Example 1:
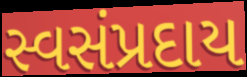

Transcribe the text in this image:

સ્વસંપ્રદાય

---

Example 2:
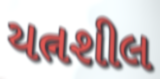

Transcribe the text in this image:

યત્નશીલ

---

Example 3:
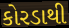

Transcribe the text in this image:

કોરડાથી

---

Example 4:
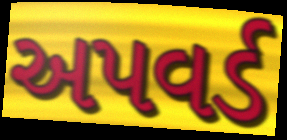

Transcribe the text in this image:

અપવર્ડ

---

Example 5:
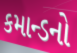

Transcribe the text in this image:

કમાન્ડનો